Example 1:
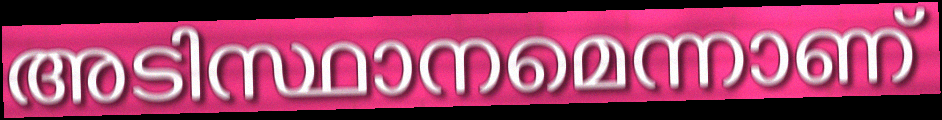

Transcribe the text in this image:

അടിസ്ഥാനമെന്നാണ്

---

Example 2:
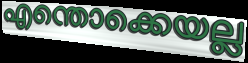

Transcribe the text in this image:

എന്തൊക്കെയല്ല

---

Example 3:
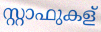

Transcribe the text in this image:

സ്റ്റാഫുകള്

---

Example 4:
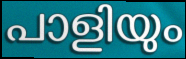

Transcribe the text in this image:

പാളിയും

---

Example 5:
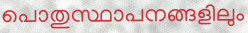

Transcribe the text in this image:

പൊതുസ്ഥാപനങ്ങളിലും